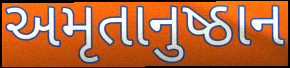
અમૃતાનુષ્ઠાન